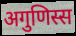
अगुणिस्स